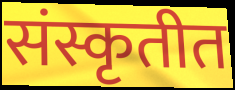
संस्कृतीत